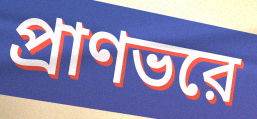
প্রাণভরে